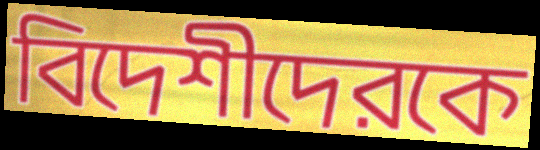
বিদেশীদেরকে